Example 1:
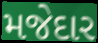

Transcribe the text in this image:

મજેદાર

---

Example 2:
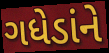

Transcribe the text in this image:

ગધેડાંને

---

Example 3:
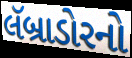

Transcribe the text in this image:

લૅબ્રાડોરનો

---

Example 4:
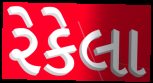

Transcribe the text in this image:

રેકેલા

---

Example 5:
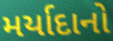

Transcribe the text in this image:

મર્યાદાનો